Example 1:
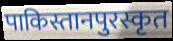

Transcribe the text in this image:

पाकिस्तानपुरस्कृत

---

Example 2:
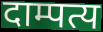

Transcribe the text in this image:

दाम्पत्य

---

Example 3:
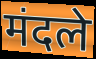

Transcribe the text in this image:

मंदले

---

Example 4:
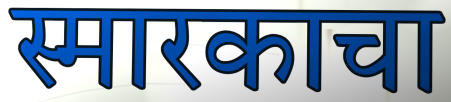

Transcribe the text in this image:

स्मारकाचा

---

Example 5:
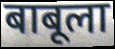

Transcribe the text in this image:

बाबूला